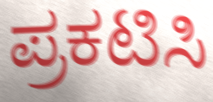
ಪ್ರಕಟಿಸಿ